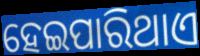
ହେଇପାରିଥାଏ